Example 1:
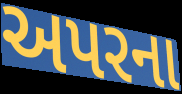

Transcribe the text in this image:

અપરના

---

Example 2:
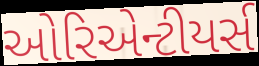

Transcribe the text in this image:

ઓરિએન્ટીયર્સ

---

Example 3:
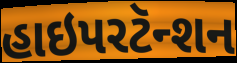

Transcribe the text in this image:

હાઇપરટૅન્શન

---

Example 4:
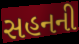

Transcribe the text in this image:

સહનની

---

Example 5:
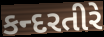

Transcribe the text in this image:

કન્દરતીરે